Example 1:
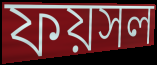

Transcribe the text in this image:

ফয়সল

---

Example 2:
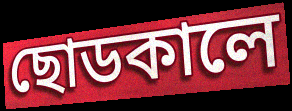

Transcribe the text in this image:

ছোডকালে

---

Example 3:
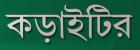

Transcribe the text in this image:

কড়াইটির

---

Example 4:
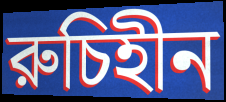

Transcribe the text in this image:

রুচিহীন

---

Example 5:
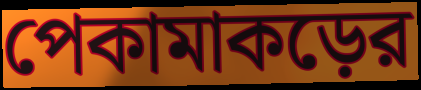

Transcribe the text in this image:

পেকামাকড়ের